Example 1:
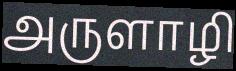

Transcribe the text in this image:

அருளாழி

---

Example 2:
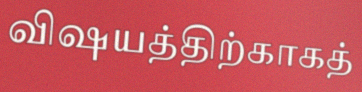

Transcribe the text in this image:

விஷயத்திற்காகத்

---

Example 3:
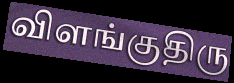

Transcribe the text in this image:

விளங்குதிரு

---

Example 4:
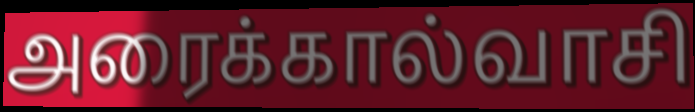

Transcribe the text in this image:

அரைக்கால்வாசி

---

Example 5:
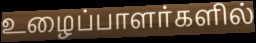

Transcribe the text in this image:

உழைப்பாளர்களில்